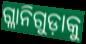
ଗ୍ଳାନିଗୁଡ଼ାକୁ